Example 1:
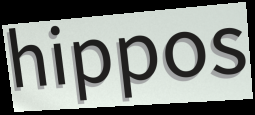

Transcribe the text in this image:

hippos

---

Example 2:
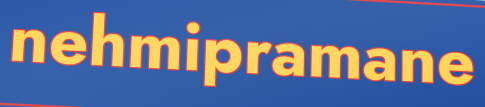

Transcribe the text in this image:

nehmipramane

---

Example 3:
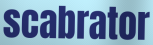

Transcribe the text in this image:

scabrator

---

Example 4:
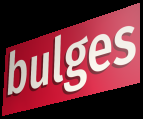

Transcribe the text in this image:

bulges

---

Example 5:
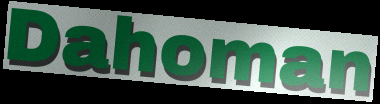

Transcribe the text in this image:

Dahoman